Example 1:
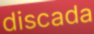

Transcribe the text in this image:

discada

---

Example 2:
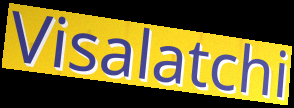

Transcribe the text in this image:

Visalatchi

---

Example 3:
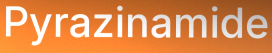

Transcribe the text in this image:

Pyrazinamide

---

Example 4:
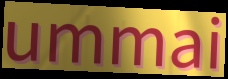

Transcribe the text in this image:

ummai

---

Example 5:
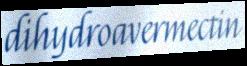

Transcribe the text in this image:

dihydroavermectin